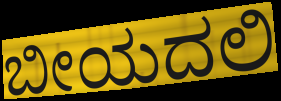
ಬೀಯದಲಿ